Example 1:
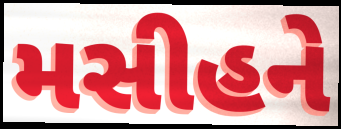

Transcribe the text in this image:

મસીહને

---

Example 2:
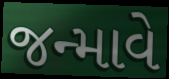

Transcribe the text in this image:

જન્માવે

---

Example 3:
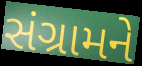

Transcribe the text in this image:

સંગ્રામને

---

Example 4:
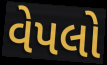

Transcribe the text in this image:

વેપલો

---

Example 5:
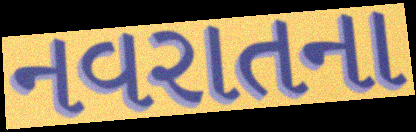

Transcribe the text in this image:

નવરાતના